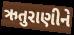
ઋતુરાણીને